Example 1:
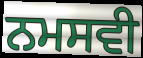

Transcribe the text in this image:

ਨਮਸਵੀ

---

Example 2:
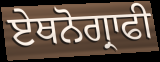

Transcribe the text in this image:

ਏਥਨੋਗ੍ਰਾਫੀ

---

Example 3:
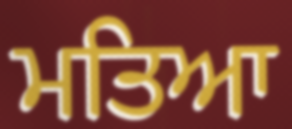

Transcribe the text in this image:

ਮਤਿਆ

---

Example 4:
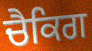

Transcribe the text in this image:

ਚੈਕਿਗ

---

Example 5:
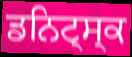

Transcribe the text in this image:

ਡਨਿਟ੍ਸ੍ਕ